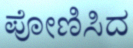
ಪೋಣಿಸಿದ